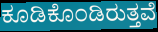
ಕೂಡಿಕೊಂಡಿರುತ್ತವೆ